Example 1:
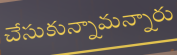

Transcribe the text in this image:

చేసుకున్నామన్నారు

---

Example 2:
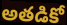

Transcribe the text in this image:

అతడికో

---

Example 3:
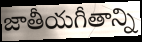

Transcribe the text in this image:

జాతీయగీతాన్ని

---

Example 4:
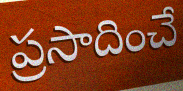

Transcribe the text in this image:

ప్రసాదించే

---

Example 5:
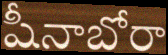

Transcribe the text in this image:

షీనాబోరా